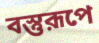
বস্তুরূপে